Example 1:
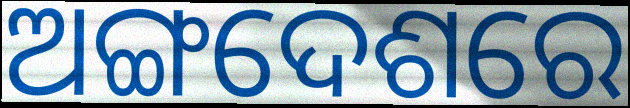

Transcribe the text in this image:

ଅଙ୍ଗଦେଶରେ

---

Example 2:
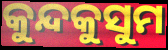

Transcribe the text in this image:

କୁନ୍ଦକୁସୁମ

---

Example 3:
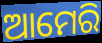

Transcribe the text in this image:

ଆମେରି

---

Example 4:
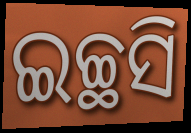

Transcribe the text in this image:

ଇଚ୍ଛସି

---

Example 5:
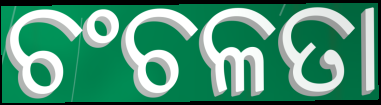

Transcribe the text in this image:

ଚଂଚଳତା